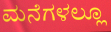
ಮನೆಗಳಲ್ಲೂ